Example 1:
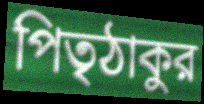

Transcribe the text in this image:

পিতৃঠাকুর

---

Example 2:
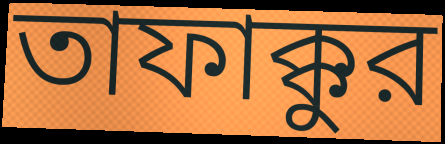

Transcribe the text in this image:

তাফাক্কুর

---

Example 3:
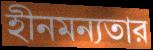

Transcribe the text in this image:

হীনমন্যতার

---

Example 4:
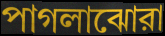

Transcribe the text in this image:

পাগলাঝোরা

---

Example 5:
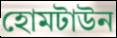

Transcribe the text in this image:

হোমটাউন